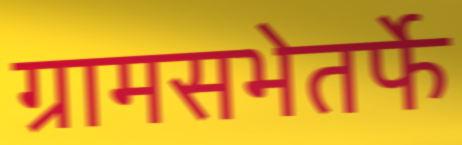
ग्रामसभेतर्फे